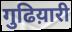
गुढिय़ारी